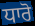
ਧਾਰੋ